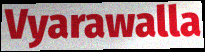
Vyarawalla